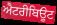
ਐਟਰੀਬਿਊਟ